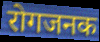
रोगजनक